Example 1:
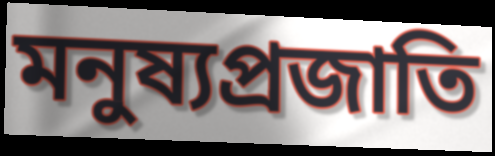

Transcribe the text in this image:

মনুষ্যপ্রজাতি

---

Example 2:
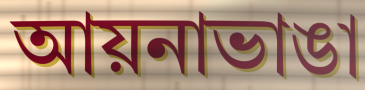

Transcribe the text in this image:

আয়নাভাঙা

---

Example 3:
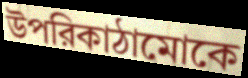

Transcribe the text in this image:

উপরিকাঠামোকে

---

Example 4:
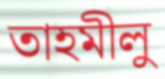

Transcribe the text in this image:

তাহমীলু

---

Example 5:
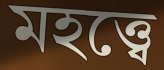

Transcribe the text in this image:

মহত্ত্বে